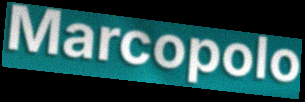
Marcopolo